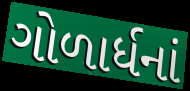
ગોળાર્ધનાં